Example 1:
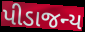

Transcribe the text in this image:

પીડાજન્ય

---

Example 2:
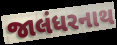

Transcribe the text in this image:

જાલંધરનાથ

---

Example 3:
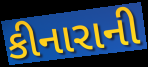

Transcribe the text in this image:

કીનારાની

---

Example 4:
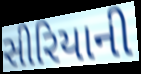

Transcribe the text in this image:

સીરિયાની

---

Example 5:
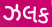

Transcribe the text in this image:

ઝલક